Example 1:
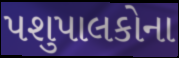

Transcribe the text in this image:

પશુપાલકોના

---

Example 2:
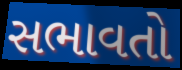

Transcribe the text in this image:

સભાવતો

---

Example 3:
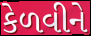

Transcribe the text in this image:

કેળવીને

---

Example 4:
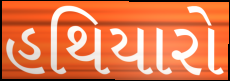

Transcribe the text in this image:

હથિયારો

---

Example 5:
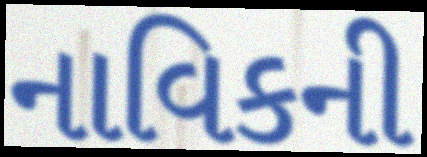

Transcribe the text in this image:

નાવિકની